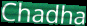
Chadha